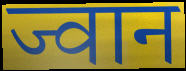
ज्वान